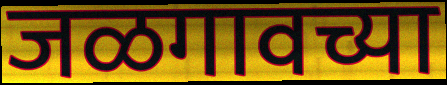
जळगावच्या